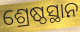
ଶ୍ରେଷ୍ଠସ୍ଥାନ